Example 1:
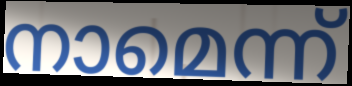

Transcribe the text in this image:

നാമെന്ന്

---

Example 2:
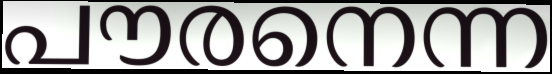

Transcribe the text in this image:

പൗരനെന്ന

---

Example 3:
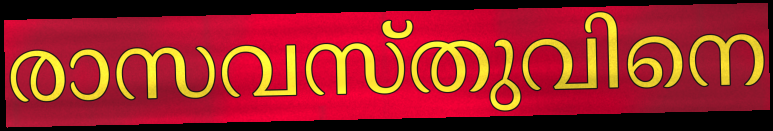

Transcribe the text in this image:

രാസവസ്തുവിനെ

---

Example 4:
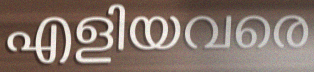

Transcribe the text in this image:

എളിയവരെ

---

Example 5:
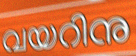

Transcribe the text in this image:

വയറിനു